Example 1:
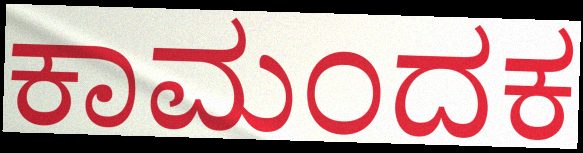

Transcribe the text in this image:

ಕಾಮಂದಕ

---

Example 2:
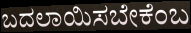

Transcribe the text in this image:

ಬದಲಾಯಿಸಬೇಕೆಂಬ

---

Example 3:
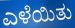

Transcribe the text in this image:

ಎಳೆಯಿತು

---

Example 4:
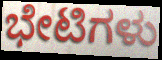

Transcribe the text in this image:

ಭೇಟಿಗಳು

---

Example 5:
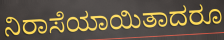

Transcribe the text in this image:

ನಿರಾಸೆಯಾಯಿತಾದರೂ